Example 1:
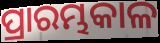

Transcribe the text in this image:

ପ୍ରାରମ୍ଭକାଳ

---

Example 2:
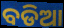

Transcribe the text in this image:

ବଡିଆ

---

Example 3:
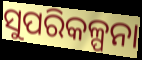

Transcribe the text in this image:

ସୁପରିକଳ୍ପନା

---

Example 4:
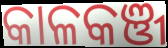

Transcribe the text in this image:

କାଳକଞ୍ଜ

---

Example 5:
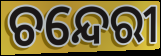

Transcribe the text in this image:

ଚନ୍ଦେରୀ